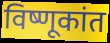
विष्णूकांत